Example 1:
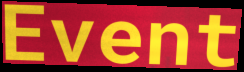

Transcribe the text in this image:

Event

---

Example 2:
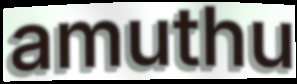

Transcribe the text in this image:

amuthu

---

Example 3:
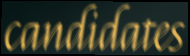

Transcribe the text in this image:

candidates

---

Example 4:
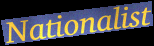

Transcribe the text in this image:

Nationalist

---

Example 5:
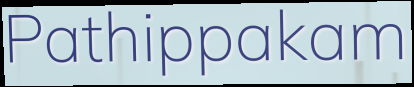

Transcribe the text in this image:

Pathippakam